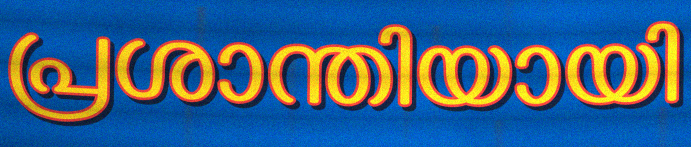
പ്രശാന്തിയായി